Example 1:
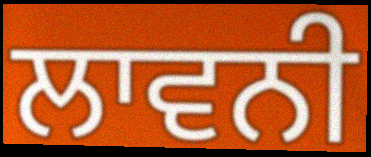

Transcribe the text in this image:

ਲਾਵਨੀ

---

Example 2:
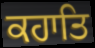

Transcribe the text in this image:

ਕਹਾਤਿ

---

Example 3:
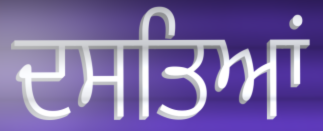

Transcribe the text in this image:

ਦਸਤਿਆਂ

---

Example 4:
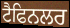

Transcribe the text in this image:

ਟੈਫਿਨਲਰ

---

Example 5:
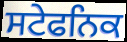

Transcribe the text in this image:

ਸਟੇਫਨਿਕ